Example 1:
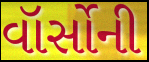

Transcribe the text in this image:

વૉર્સોની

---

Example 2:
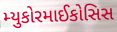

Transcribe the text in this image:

મ્યુકોરમાઈકોસિસ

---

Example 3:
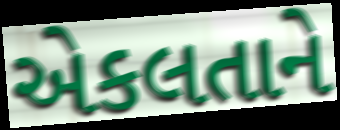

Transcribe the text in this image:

એકલતાને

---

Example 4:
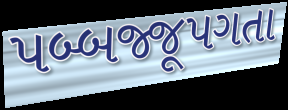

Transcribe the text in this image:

પબ્બજ્જૂપગતા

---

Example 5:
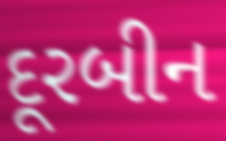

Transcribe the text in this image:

દૂરબીન